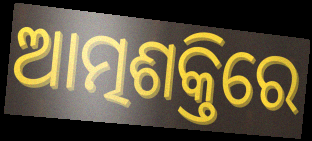
ଆତ୍ମଶକ୍ତିରେ